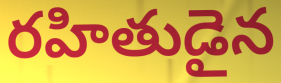
రహితుడైన